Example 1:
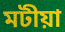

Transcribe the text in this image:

মটীয়া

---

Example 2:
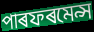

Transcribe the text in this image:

পাৰফৰমেন্স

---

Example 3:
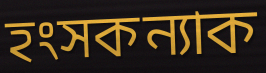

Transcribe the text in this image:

হংসকন্যাক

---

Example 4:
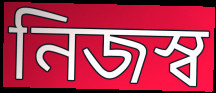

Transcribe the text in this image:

নিজস্ব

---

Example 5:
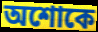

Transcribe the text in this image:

অশোকে